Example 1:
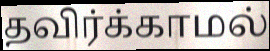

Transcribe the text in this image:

தவிர்க்காமல்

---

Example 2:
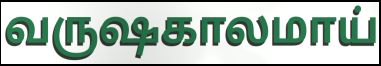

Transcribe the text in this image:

வருஷகாலமாய்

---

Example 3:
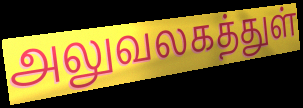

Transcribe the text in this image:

அலுவலகத்துள்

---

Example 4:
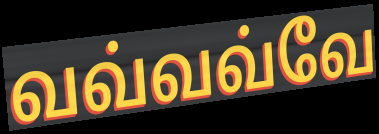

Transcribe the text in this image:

வவ்வவ்வே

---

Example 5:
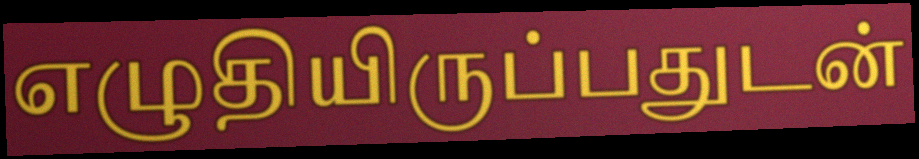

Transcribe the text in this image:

எழுதியிருப்பதுடன்